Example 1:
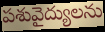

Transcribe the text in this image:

పశువైద్యులను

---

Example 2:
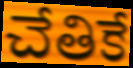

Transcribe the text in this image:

చేతికే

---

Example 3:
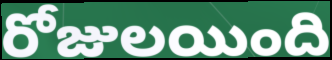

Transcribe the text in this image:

రోజులయింది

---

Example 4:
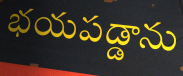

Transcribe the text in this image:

భయపడ్డాను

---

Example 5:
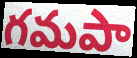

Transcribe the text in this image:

గమపా